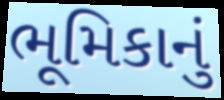
ભૂમિકાનું